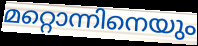
മറ്റൊന്നിനെയും